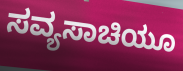
ಸವ್ಯಸಾಚಿಯೂ